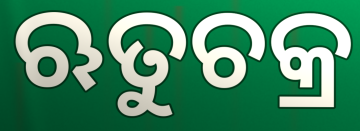
ଋତୁଚକ୍ର